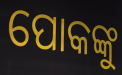
ପୋକଙ୍କୁ